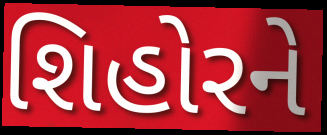
શિહોરને